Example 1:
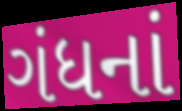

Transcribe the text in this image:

ગંધનાં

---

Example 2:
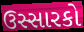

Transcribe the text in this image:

ઉસ્સારકો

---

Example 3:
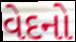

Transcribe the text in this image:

વેદનો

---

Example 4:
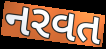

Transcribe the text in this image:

નરવત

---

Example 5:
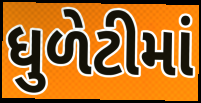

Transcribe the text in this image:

ધુળેટીમાં